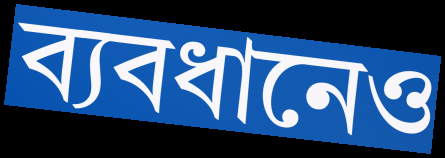
ব্যবধানেও